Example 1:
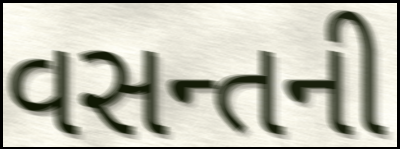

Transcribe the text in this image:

વસન્તની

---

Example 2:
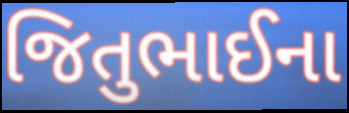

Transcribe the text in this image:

જિતુભાઈના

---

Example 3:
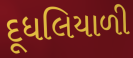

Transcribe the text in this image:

દૂધલિયાળી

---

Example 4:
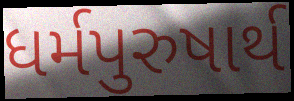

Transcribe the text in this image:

ધર્મપુરુષાર્થ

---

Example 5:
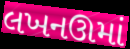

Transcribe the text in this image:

લખનઊમાં